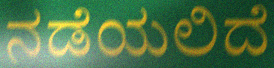
ನಡೆಯಲಿದೆ